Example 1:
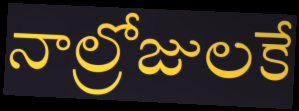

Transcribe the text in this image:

నాల్రోజులకే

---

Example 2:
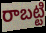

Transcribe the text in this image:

రాబట్టి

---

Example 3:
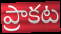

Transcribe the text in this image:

ప్రాకట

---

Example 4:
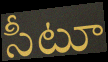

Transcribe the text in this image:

సీటూ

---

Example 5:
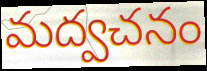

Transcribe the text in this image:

మద్వచనం